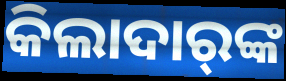
କିଲାଦାର୍‍ଙ୍କ